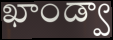
ఖాండ్వా